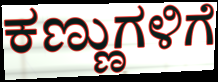
ಕಣ್ಣುಗಳಿಗೆ